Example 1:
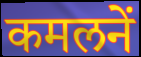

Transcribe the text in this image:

कमलनें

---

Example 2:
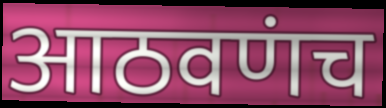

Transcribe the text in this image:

आठवणंच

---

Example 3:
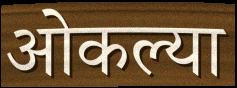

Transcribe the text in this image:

ओकल्या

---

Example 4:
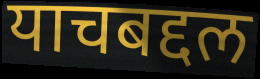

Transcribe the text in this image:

याचबद्दल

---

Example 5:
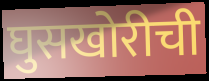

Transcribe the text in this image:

घुसखोरीची